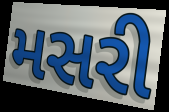
મસરી